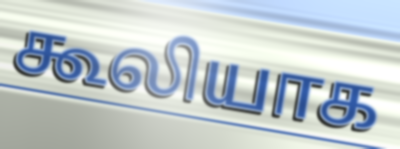
கூலியாக